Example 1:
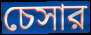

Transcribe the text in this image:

চেসার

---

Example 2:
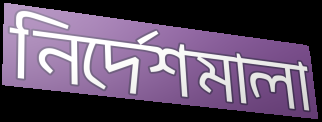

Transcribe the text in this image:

নির্দেশমালা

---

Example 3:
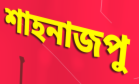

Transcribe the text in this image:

শাহনাজপু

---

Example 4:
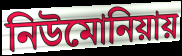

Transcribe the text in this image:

নিউমোনিয়ায়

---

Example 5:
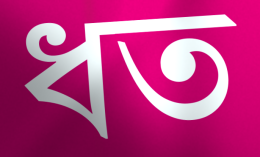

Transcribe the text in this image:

ধত